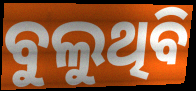
ବୁଲୁଥିବି